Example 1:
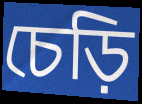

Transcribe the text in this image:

চেড়ি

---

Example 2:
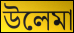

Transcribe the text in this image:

উলেমা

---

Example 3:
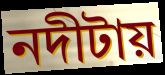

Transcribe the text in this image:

নদীটায়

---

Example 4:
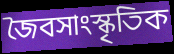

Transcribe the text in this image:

জৈবসাংস্কৃতিক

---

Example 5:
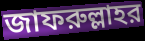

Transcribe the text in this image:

জাফরুল্লাহর